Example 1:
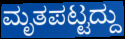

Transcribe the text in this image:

ಮೃತಪಟ್ಟದ್ದು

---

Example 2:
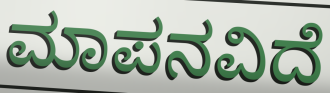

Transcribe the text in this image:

ಮಾಪನವಿದೆ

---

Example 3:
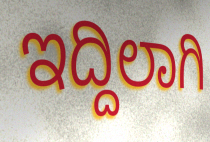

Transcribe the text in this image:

ಇದ್ದಿಲಾಗಿ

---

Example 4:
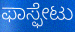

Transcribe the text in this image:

ಫಾಸ್ಫೇಟು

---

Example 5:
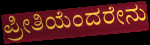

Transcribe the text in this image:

ಪ್ರೀತಿಯೆಂದರೇನು